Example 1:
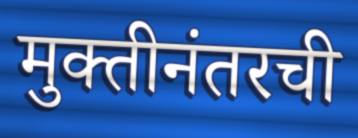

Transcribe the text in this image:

मुक्तीनंतरची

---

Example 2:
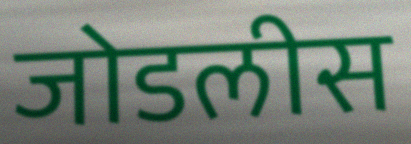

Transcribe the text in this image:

जोडलीस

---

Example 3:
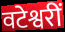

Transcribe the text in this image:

वटेश्वरीं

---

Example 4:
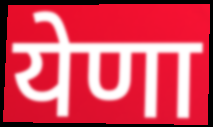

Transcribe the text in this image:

येणा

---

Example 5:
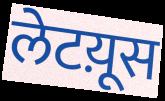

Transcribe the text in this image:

लेटय़ूस